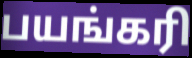
பயங்கரி